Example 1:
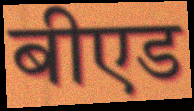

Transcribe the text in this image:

बीएड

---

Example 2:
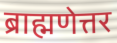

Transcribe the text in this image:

ब्राह्मणेत्तर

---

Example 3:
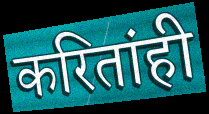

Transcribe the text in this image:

करितांही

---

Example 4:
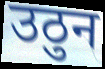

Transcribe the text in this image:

उठुन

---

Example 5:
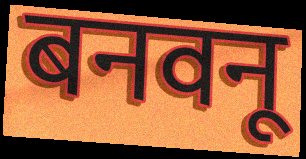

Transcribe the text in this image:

बनवनू